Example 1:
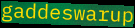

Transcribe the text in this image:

gaddeswarup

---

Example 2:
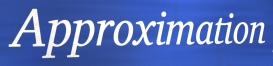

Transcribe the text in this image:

Approximation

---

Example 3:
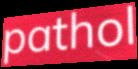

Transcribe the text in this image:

pathol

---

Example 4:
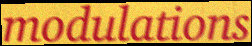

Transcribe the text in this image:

modulations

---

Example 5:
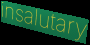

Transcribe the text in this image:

insalutary